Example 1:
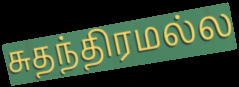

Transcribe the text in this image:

சுதந்திரமல்ல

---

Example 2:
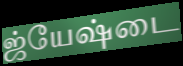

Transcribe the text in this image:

ஜ்யேஷ்டை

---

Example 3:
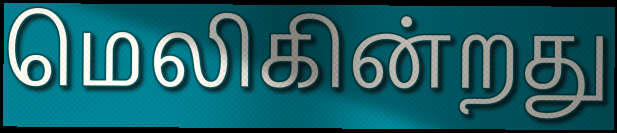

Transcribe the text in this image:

மெலிகின்றது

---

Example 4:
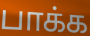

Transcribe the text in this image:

பாக்க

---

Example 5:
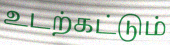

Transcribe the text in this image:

உடற்கட்டும்